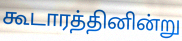
கூடாரத்தினின்று